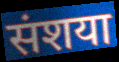
संशया